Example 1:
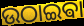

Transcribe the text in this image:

ଉଠାଇଵା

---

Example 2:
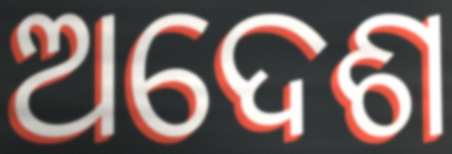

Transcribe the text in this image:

ଅଦେଶ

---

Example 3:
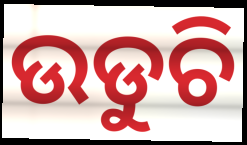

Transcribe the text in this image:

ଉଡୁଚି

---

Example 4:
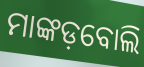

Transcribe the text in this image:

ମାଙ୍କଡ଼ବୋଲି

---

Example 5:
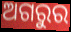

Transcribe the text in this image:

ଅଗରୁର